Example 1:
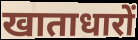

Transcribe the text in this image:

खाताधारों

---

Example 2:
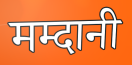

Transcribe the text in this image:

मम्दानी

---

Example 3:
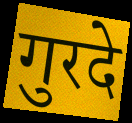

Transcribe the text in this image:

गुरदे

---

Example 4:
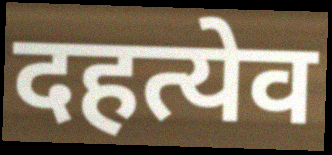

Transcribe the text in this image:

दहत्येव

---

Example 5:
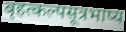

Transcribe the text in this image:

बृहत्कल्पसूत्रभाष्य